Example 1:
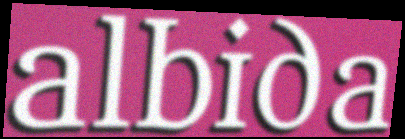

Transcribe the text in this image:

albida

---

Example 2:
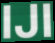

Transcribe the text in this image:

IJI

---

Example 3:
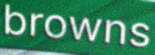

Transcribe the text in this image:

browns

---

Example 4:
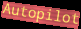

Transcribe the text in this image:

Autopilot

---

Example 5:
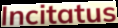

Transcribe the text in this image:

Incitatus